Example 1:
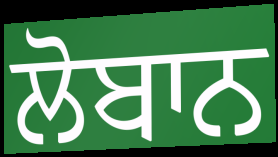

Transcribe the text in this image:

ਲੋਬਾਨ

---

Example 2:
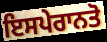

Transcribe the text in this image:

ਇਸਪੇਰਾਨਤੋ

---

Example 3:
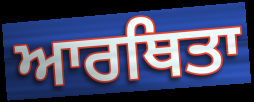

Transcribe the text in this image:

ਆਰਥਿਤਾ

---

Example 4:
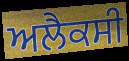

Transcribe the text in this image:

ਅਲੈਕਸੀ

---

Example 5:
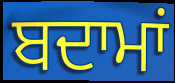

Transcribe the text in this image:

ਬਦਾਮਾਂ